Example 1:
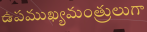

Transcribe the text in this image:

ఉపముఖ్యమంత్రులుగా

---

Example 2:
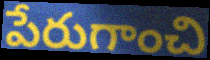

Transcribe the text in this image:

పేరుగాంచి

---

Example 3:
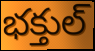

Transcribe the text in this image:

భక్తుల్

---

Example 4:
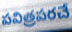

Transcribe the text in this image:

పవిత్రపరచే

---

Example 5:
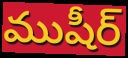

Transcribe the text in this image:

ముషీర్